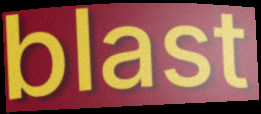
blast